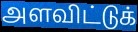
அளவிட்டுக்